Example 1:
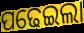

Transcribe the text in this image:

ପଢେଇଲା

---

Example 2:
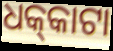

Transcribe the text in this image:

ଧକ୍‌କାଟା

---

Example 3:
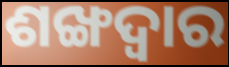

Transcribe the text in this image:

ଶଙ୍ଖଦ୍ୱାର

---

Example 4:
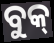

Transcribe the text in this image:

ବୁକ୍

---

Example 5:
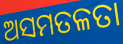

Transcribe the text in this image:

ଅସମତଳତା